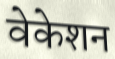
वेकेशन